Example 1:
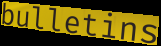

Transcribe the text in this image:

bulletins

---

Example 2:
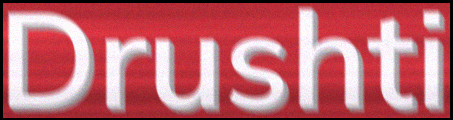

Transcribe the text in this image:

Drushti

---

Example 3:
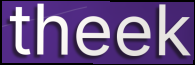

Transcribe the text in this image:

theek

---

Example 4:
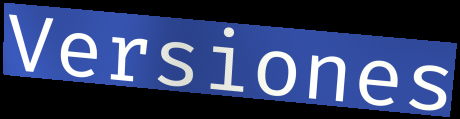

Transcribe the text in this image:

Versiones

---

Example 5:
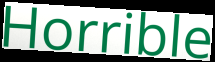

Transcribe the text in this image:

Horrible